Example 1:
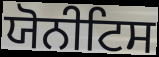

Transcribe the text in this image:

ਯੋਨੀਟਿਸ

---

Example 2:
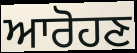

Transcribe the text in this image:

ਆਰੋਹਣ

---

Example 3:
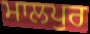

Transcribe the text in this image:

ਮਾਲਪੁਰ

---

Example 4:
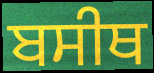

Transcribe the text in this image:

ਬਸੀਥ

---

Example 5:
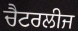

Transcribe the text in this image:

ਚੈਟਰਲੀਜ